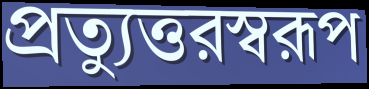
প্রত্যুত্তরস্বরূপ